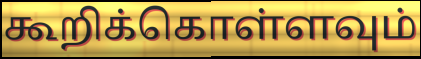
கூறிக்கொள்ளவும்